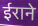
ईराने